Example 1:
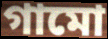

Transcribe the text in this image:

গামো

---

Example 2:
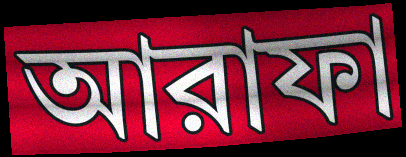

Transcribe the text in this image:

আরাফা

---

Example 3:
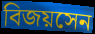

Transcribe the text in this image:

বিজয়সেন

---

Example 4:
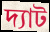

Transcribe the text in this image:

দ্যাট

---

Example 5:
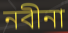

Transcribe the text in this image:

নবীনা